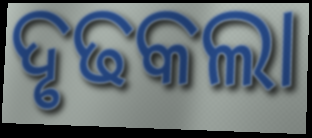
ଦୃଢକଲା